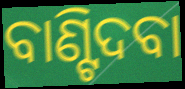
ବାଣ୍ଟିଦବା